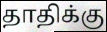
தாதிக்கு